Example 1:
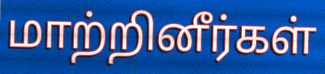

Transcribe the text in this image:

மாற்றினீர்கள்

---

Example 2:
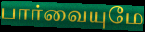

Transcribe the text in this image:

பார்வையுமே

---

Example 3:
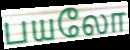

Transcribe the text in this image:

பயலோ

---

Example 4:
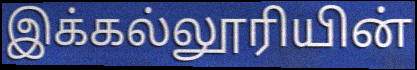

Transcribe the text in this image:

இக்கல்லூரியின்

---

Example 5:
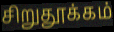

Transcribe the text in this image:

சிறுதூக்கம்